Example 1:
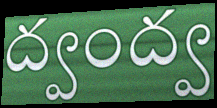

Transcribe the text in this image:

ద్వంద్వ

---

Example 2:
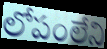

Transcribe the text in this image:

లోపంలేని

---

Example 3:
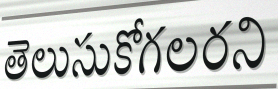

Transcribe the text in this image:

తెలుసుకోగలరని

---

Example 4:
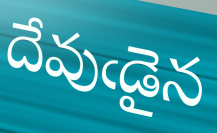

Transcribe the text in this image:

దేవుఁడైన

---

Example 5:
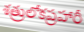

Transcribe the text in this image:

శత్రులోకప్రహారీ